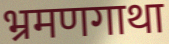
भ्रमणगाथा